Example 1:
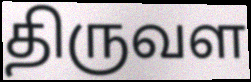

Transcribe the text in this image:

திருவள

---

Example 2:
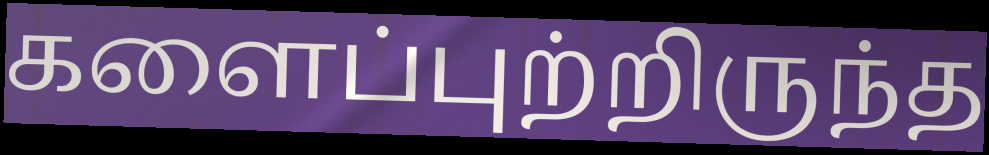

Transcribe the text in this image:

களைப்புற்றிருந்த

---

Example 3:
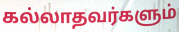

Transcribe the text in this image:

கல்லாதவர்களும்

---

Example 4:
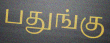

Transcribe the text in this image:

பதுங்கு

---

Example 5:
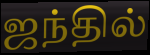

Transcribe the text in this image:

ஜந்தில்